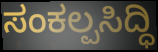
ಸಂಕಲ್ಪಸಿದ್ಧಿ